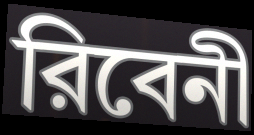
রিবেনী